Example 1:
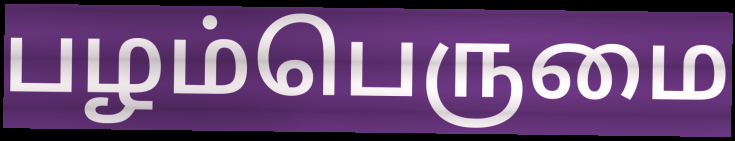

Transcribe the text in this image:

பழம்பெருமை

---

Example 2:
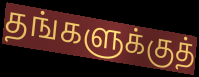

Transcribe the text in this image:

தங்களுக்குத்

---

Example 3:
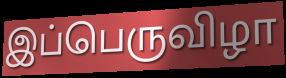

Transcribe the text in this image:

இப்பெருவிழா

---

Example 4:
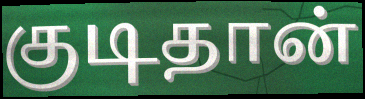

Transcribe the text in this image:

குடிதான்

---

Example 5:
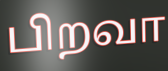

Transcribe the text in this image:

பிறவா